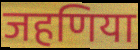
जहणिया